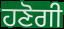
ਹਣੋਗੀ